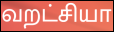
வறட்சியா